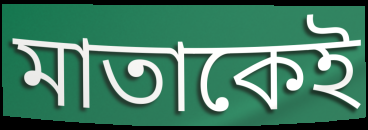
মাতাকেই